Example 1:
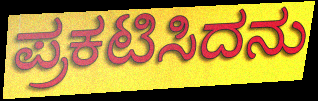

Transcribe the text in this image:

ಪ್ರಕಟಿಸಿದನು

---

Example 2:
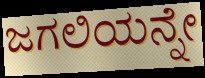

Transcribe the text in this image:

ಜಗಲಿಯನ್ನೇ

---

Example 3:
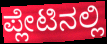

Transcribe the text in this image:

ಪ್ಲೇಟಿನಲ್ಲಿ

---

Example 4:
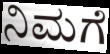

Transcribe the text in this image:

ನಿಮಗೆ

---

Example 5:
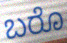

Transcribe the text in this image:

ಬರೊ